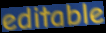
editable